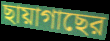
ছায়াগাছের